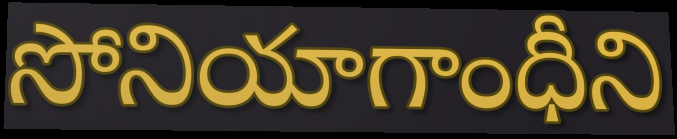
సోనియాగాంధీని